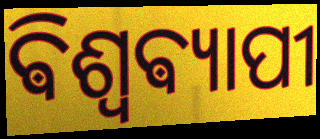
ଵିଶ୍ଵଵ୍ୟାପୀ